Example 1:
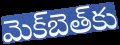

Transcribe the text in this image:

మెక్‌బెత్‌కు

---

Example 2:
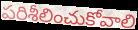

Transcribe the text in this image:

పరిశీలించుకోవాలి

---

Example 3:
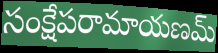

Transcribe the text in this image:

సంక్షేపరామాయణమ్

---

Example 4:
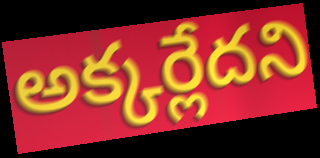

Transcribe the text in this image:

అక్కర్లేదని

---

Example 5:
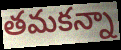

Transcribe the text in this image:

తమకన్నా